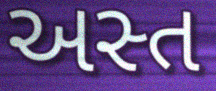
અસ્ત